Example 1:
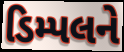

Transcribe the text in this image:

ડિમ્પલને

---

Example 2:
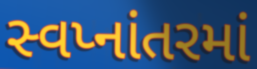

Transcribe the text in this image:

સ્વપ્નાંતરમાં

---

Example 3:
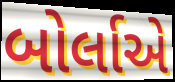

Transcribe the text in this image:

બોર્લાએ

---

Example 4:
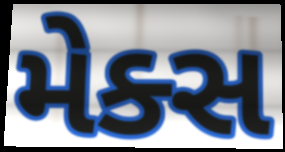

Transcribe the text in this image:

મેક્સ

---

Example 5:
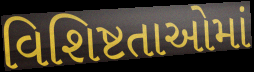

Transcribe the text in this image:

વિશિષ્ટતાઓમાં